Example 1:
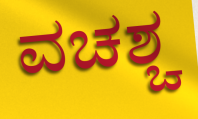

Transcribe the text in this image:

ವಚಶ್ಚ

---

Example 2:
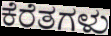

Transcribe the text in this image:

ಕೆರೆತಗಳು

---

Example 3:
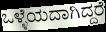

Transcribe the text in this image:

ಒಳ್ಳೆಯದಾಗಿದ್ದರೆ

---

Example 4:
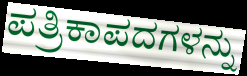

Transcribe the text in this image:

ಪತ್ರಿಕಾಪದಗಳನ್ನು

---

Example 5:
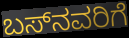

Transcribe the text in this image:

ಬಸ್‌ನವರಿಗೆ